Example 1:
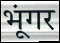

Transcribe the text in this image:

भूंगर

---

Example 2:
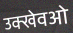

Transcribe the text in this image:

उक्खेवओ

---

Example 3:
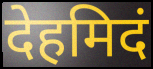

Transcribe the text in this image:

देहमिदं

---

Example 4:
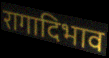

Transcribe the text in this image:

रागादिभाव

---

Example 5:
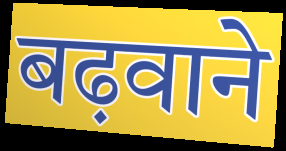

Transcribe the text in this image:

बढ़वाने